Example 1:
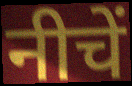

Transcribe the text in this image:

नीचें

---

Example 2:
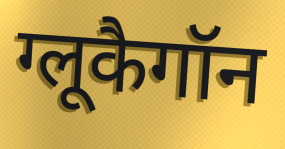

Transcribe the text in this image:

ग्लूकैगॉन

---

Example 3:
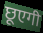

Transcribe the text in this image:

छूएगी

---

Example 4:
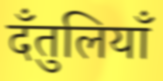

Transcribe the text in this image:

दँतुलियाँ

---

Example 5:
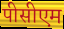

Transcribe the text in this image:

पीसीएम